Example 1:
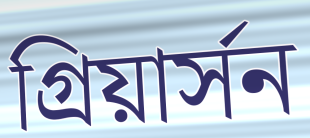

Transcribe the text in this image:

গ্রিয়ার্সন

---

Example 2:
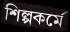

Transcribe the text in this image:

শিল্পকর্মে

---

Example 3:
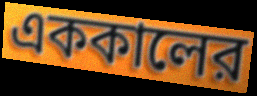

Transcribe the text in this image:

এককালের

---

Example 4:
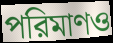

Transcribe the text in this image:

পরিমাণও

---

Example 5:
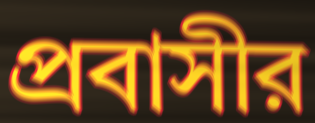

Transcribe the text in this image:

প্রবাসীর